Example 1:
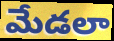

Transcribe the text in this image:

మేడలా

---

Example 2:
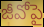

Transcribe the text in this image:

జీవోపై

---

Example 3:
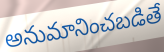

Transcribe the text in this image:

అనుమానించబడితే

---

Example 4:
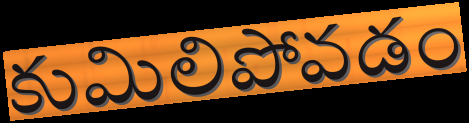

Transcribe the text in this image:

కుమిలిపోవడం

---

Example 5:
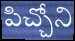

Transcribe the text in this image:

పిచ్చోని